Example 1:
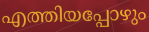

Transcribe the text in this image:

എത്തിയപ്പോഴും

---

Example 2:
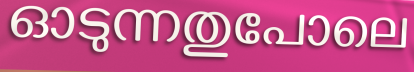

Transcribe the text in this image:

ഓടുന്നതുപോലെ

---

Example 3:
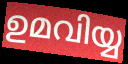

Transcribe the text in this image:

ഉമവിയ്യ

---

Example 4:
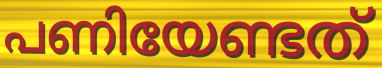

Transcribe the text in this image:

പണിയേണ്ടത്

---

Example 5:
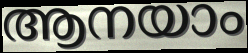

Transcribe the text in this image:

ആനയാം